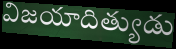
విజయాదిత్యుడు